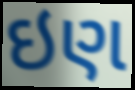
ઇણ